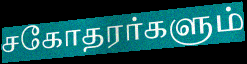
சகோதரர்களும்